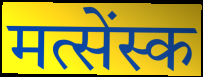
मत्सेंस्क